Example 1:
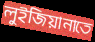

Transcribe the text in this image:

লুইজিয়ানাতে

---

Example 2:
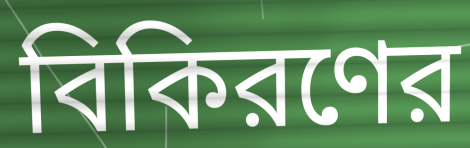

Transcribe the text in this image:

বিকিরণের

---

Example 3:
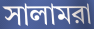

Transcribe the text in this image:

সালামরা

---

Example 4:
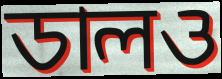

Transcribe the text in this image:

ডালও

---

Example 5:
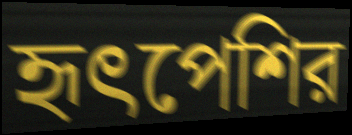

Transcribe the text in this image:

হৃৎপেশির